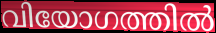
വിയോഗത്തിൽ